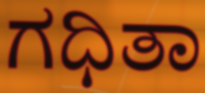
ಗಧಿತಾ